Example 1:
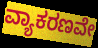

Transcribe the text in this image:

ವ್ಯಾಕರಣವೇ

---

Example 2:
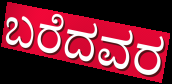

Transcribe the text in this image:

ಬರೆದವರ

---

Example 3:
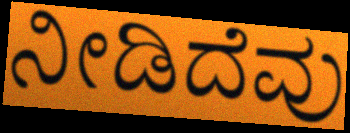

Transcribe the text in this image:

ನೀಡಿದೆವು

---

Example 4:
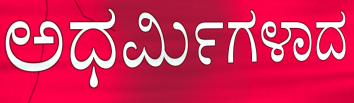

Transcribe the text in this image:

ಅಧರ್ಮಿಗಳಾದ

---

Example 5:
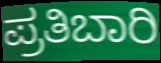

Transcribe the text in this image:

ಪ್ರತಿಬಾರಿ